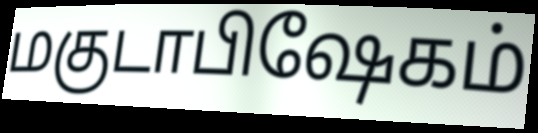
மகுடாபிஷேகம்